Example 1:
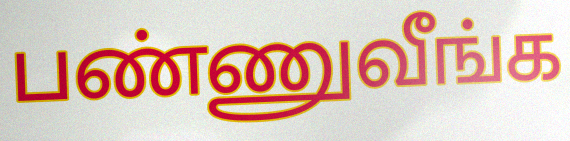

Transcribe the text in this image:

பண்ணுவீங்க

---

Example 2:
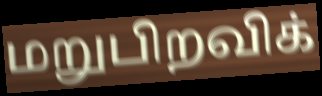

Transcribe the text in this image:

மறுபிறவிக்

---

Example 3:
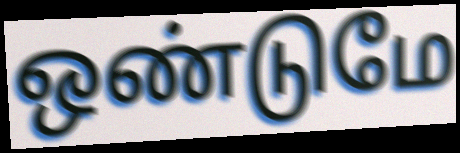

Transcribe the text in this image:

ஒண்டுமே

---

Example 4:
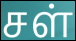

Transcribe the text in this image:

சள்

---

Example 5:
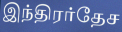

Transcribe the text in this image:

இந்திரர்தேச